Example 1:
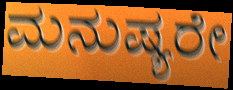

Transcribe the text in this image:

ಮನುಷ್ಯರೇ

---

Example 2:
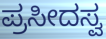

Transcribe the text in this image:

ಪ್ರಸೀದಸ್ವ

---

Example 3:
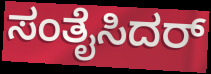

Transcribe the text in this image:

ಸಂತೈಸಿದರ್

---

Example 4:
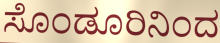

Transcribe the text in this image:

ಸೊಂಡೂರಿನಿಂದ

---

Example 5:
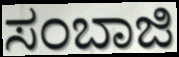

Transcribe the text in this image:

ಸಂಬಾಜಿ